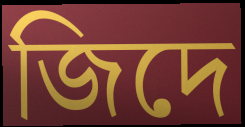
জিদে